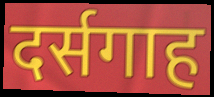
दर्सगाह